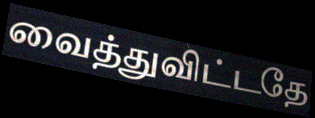
வைத்துவிட்டதே